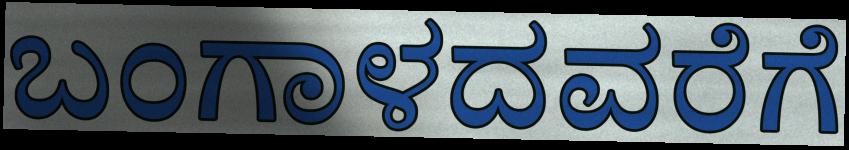
ಬಂಗಾಳದವರೆಗೆ